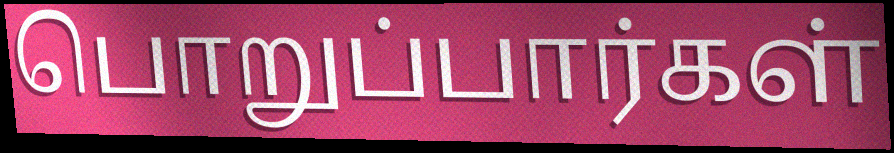
பொறுப்பார்கள்